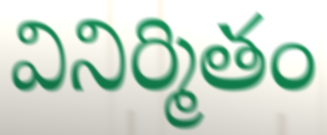
వినిర్మితం